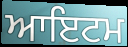
ਆਇਟਮ